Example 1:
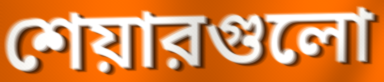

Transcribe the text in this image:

শেয়ারগুলো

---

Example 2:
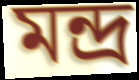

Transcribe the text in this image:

মন্দ্র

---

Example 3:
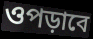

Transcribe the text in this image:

ওপড়াবে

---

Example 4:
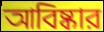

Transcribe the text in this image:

আবিষ্কার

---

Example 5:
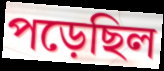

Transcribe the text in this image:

পড়েছিল